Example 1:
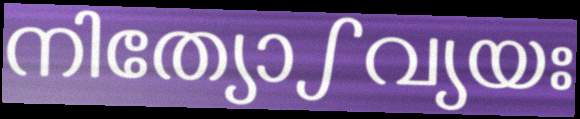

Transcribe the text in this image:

നിത്യോഽവ്യയഃ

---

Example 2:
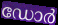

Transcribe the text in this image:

ഡോർ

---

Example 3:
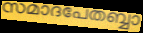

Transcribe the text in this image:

സമാദപേതബ്ബാ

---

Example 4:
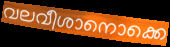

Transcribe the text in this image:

വലവീശാനൊക്കെ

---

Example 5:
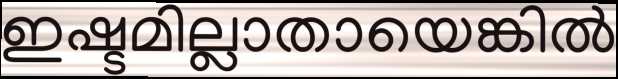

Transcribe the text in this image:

ഇഷ്ടമില്ലാതായെങ്കിൽ